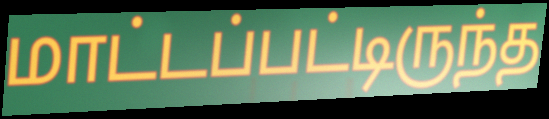
மாட்டப்பட்டிருந்த